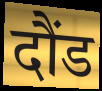
दौंड